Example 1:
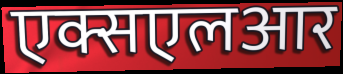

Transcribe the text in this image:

एक्सएलआर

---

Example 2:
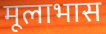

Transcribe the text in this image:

मूलाभास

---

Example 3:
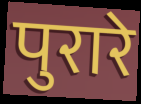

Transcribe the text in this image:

पुरारे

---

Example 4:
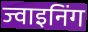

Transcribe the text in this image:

ज्वाइनिंग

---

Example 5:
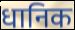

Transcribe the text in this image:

धानिक